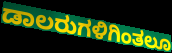
ಡಾಲರುಗಳಿಗಿಂತಲೂ